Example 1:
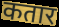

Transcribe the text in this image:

कतार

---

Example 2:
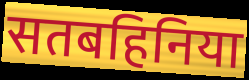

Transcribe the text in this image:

सतबहिनिया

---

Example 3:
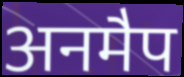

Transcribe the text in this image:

अनमैप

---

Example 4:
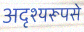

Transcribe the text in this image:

अदृश्यरूपसे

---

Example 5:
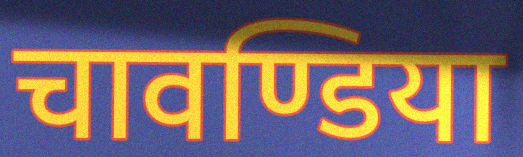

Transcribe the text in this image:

चावण्डिया